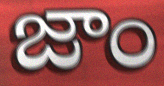
జాం